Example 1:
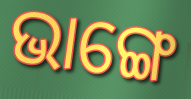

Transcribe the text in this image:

ଭାଙ୍ଗେ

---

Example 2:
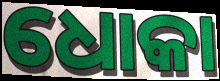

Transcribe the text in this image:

ଧୋକା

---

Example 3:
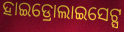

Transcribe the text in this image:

ହାଇଡ୍ରୋଲାଇସେଟ୍ସ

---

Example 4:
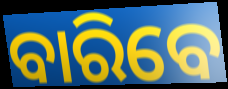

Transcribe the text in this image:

ବାରିବେ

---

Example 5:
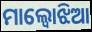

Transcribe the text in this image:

ମାଲ୍ବୋଝିଆ